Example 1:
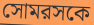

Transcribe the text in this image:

সোমরসকে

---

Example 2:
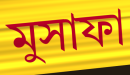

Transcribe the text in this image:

মুসাফা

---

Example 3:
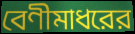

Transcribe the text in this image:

বেণীমাধরের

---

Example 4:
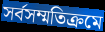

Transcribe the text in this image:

সর্বসম্মতিক্রমে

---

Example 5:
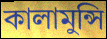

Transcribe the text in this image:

কালামুন্সি